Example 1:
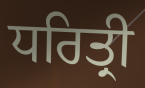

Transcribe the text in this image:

ਧਰਿਤ੍ਰੀ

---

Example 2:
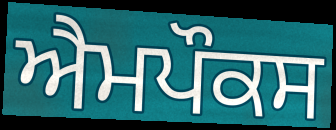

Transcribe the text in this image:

ਐਮਪੌਕਸ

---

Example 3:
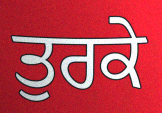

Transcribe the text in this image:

ਤੁਰਕੇ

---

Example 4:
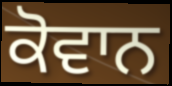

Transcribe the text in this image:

ਕੋਵਾਨ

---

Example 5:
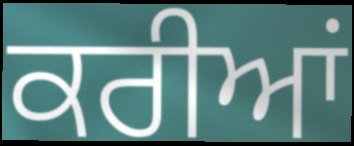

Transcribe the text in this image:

ਕਰੀਆਂ